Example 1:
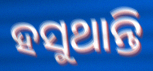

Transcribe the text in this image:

ହସୁଥାନ୍ତି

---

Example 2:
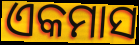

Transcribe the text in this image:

ଏକମାସ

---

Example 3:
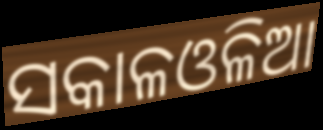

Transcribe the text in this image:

ସକାଳଓଳିଆ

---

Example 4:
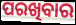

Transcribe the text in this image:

ପରଖିବାର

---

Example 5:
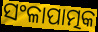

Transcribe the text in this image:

ସଂଳାପାତ୍ମକ